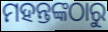
ମହନ୍ତଙ୍କଠାରୁ